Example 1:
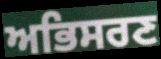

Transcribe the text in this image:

ਅਭਿਸਰਣ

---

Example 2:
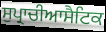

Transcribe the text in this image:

ਸੁਪ੍ਰਾਚੀਆਸੈਟਿਕ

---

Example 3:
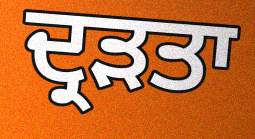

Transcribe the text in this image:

ਦ੍ਰੜਤਾ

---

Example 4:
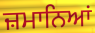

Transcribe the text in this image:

ਜ਼ਮਾਨਿਆਂ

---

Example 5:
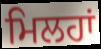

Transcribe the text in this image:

ਮਿਲਹਾਂ